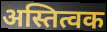
अस्तित्वक